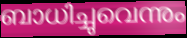
ബാധിച്ചുവെന്നും